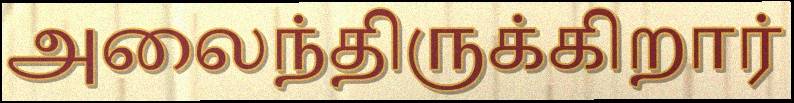
அலைந்திருக்கிறார்